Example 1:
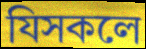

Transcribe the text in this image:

যিসকলে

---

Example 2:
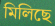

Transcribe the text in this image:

মিলিছে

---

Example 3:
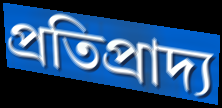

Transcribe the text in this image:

প্ৰতিপ্ৰাদ্য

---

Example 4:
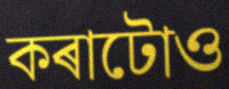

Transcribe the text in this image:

কৰাটোও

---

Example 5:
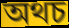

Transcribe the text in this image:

অথচ